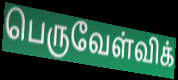
பெருவேள்விக்